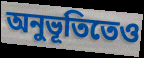
অনুভূতিতেও